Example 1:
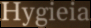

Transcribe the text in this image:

Hygieia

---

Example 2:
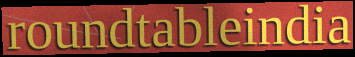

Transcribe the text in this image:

roundtableindia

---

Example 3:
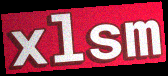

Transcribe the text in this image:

xlsm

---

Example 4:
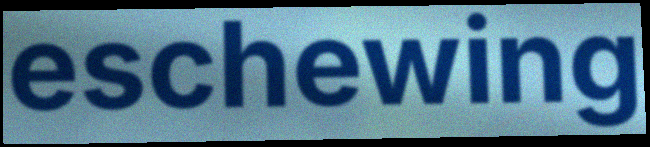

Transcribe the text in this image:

eschewing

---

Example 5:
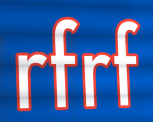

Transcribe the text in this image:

rfrf